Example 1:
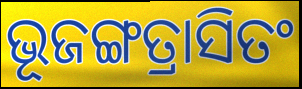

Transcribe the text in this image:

ଭୂଜଙ୍ଗତ୍ରାସିତଂ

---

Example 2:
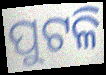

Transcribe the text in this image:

ପୁଟଳି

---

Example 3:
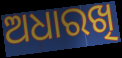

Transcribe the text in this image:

ଅଧାରଖି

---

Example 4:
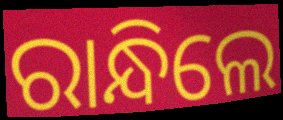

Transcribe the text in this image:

ରାନ୍ଧିଲେ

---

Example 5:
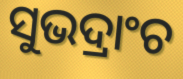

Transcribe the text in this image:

ସୁଭଦ୍ରାଂଚ